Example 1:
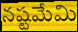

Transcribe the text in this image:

నష్టమేమి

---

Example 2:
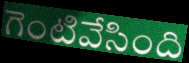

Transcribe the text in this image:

గెంటివేసింది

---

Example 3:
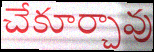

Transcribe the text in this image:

చేకూర్చావు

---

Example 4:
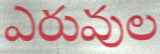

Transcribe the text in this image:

ఎరువుల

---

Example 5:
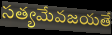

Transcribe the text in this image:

సత్యమేవజయతే